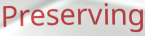
Preserving